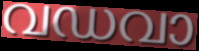
വഡവാ